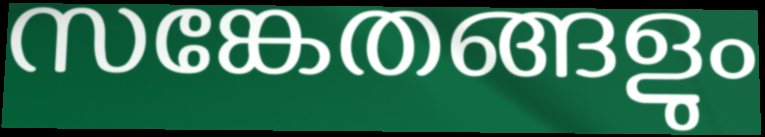
സങ്കേതങ്ങളും